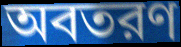
অবতরণ